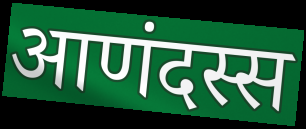
आणंदस्स